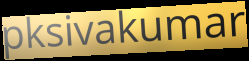
pksivakumar